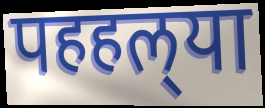
पहहल्या